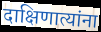
दाक्षिणात्यांना